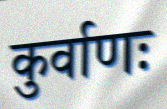
कुर्वाणः